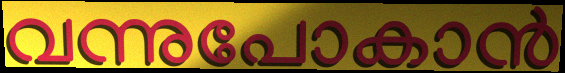
വന്നുപോകാൻ